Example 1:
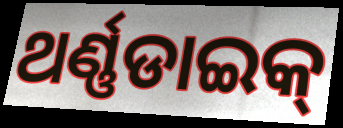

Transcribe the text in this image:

ଥର୍ଣ୍ଣଡାଇକ୍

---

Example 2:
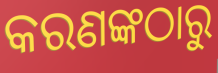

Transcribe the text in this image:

କରଣଙ୍କଠାରୁ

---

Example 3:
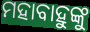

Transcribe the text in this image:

ମହାବାହୁଙ୍କୁ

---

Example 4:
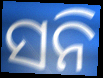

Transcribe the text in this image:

ସନି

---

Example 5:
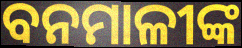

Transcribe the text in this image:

ବନମାଳୀଙ୍କ